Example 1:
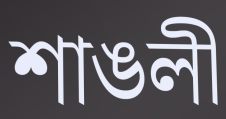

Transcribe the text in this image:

শাঙলী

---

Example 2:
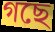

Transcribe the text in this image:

গছে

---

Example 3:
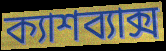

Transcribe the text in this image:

ক্যাশব্যাক্স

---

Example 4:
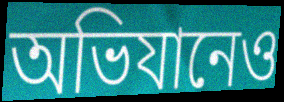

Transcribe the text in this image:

অভিযানেও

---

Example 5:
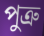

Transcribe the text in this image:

পুত্রু